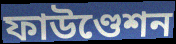
ফাউণ্ডেশন